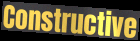
Constructive